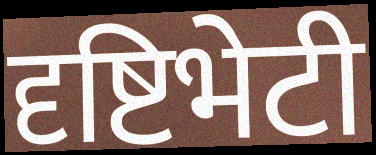
दृष्टिभेटी